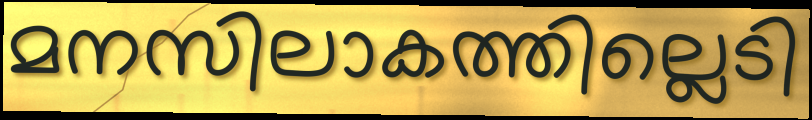
മനസിലാകത്തില്ലെടി